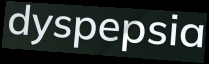
dyspepsia